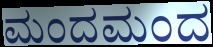
ಮಂದಮಂದ